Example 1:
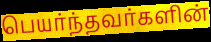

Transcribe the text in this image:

பெயர்ந்தவர்களின்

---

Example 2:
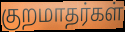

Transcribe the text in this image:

குறமாதர்கள்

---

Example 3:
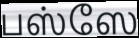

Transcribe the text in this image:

பஸ்ஸே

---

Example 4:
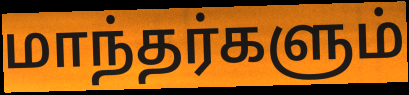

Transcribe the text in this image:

மாந்தர்களும்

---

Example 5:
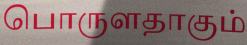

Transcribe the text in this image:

பொருளதாகும்